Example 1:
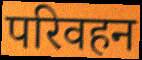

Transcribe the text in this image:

परिवहन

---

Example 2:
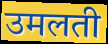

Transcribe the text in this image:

उमलती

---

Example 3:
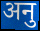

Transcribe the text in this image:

अनु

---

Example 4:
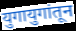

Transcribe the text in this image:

युगायुगांतून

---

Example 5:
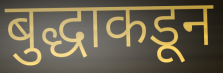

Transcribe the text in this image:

बुद्धाकडून